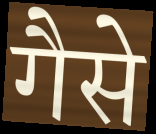
गैसे